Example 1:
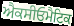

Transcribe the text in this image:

ਐਕਸੀਓਮੈਟਿਕ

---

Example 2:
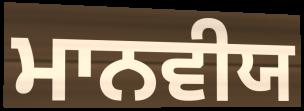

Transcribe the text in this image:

ਮਾਨਵੀਯ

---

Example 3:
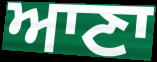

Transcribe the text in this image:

ਆਣਾ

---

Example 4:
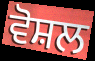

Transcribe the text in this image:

ਵੋਸ਼ਲ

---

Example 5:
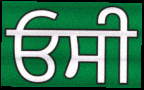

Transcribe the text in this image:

ਓਸੀ